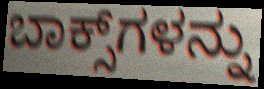
ಬಾಕ್ಸ್‌ಗಳನ್ನು